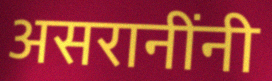
असरानींनी